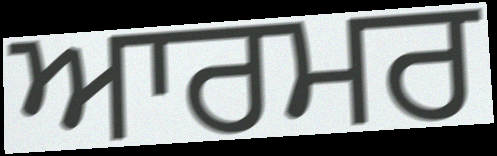
ਆਰਮਰ